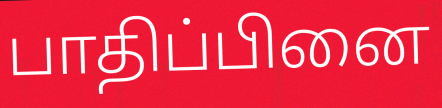
பாதிப்பினை